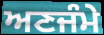
ਅਣਜੰਮੇ